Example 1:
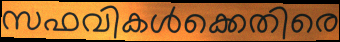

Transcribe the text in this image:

സഫവികൾക്കെതിരെ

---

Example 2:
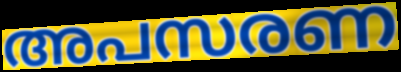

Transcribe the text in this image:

അപസരണ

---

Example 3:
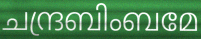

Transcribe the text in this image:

ചന്ദ്രബിംബമേ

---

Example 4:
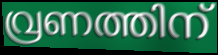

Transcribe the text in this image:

വ്രണത്തിന്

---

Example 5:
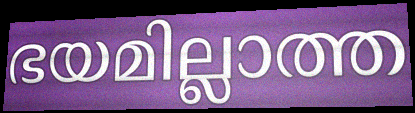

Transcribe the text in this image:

ഭയമില്ലാത്ത